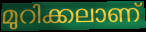
മുറിക്കലാണ്